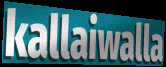
kallaiwalla